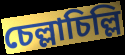
চেল্লাচিল্লি